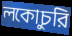
লকোচুরি